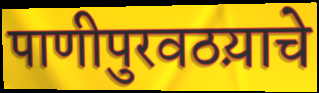
पाणीपुरवठय़ाचे